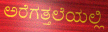
ಅರೆಗತ್ತಲೆಯಲ್ಲಿ